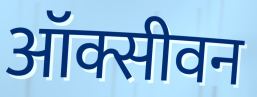
ऑक्सीवन